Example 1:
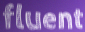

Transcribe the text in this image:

fluent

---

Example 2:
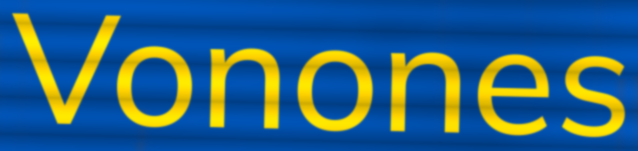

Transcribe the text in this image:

Vonones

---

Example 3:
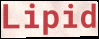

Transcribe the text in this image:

Lipid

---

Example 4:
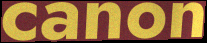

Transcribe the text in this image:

canon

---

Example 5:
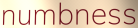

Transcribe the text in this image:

numbness